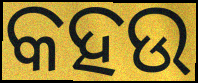
କହଉ